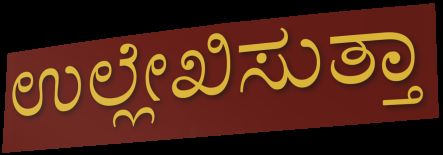
ಉಲ್ಲೇಖಿಸುತ್ತಾ